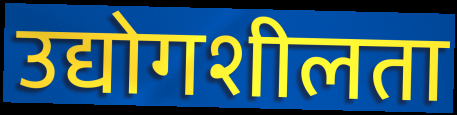
उद्योगशीलता